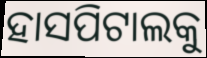
ହାସପିଟାଲକୁ